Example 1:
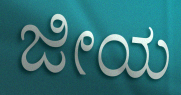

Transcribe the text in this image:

ಜೀಯ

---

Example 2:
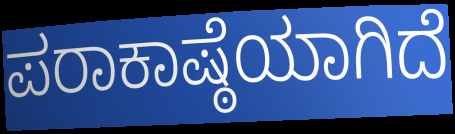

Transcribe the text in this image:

ಪರಾಕಾಷ್ಠೆಯಾಗಿದೆ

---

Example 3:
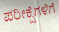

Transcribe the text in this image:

ಪರೀಕ್ಷೆಗಳಿಗೆ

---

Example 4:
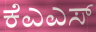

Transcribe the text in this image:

ಕೆಎಎಸ್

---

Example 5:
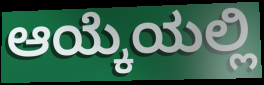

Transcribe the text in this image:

ಆಯ್ಕೆಯಲ್ಲಿ